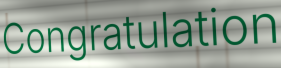
Congratulation